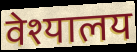
वेश्यालय